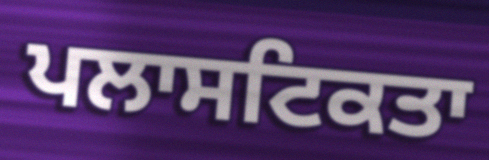
ਪਲਾਸਟਿਕਤਾ